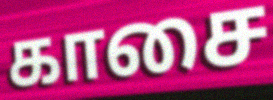
காசை